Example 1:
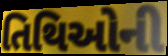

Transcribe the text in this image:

તિથિઓની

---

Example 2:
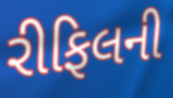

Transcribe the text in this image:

રીફિલની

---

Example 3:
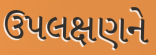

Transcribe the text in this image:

ઉપલક્ષણને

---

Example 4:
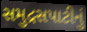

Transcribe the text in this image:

સમુદ્રસપાટીનું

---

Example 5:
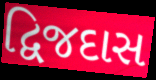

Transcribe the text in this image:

દ્વિજદાસ